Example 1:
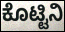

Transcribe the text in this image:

ಕೊಟ್ಟಿನಿ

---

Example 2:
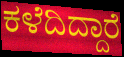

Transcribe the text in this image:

ಕಳೆದಿದ್ದಾರೆ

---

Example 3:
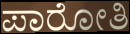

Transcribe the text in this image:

ಪಾರೋತಿ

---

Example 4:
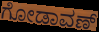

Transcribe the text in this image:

ಗೋಡಾವಣ್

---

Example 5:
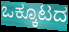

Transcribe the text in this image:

ಒಕ್ಕೂಟದ